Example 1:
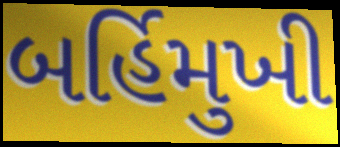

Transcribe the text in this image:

બર્હિમુખી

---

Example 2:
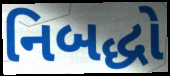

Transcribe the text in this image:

નિબદ્ધો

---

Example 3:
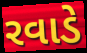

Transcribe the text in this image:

રવાડે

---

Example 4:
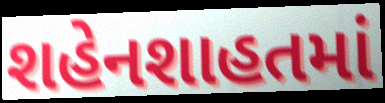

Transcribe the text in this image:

શહેનશાહતમાં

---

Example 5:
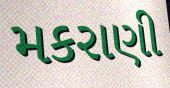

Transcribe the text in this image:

મકરાણી